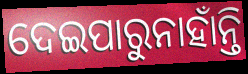
ଦେଇପାରୁନାହାଁନ୍ତି